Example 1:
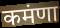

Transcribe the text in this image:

कमंणा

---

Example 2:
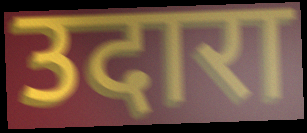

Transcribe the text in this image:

उदारा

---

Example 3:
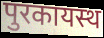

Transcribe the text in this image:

पुरकायस्थ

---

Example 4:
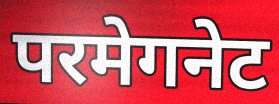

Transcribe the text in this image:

परमेगनेट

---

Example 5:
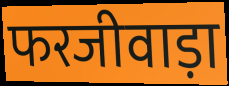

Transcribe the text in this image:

फरजीवाड़ा